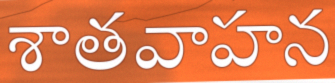
శాతవాహన